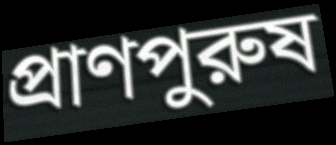
প্রাণপুরুষ